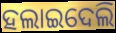
ହଲାଇଦେଲି